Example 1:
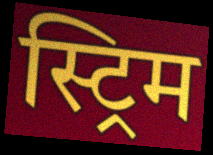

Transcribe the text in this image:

स्ट्रिम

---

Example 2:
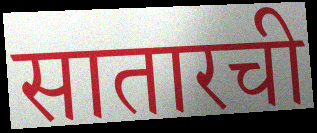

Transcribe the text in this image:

सातारची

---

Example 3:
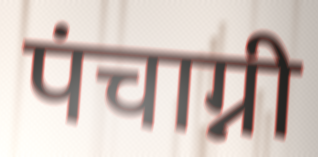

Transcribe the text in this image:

पंचाग्नी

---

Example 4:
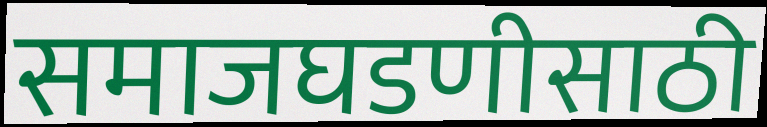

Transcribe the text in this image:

समाजघडणीसाठी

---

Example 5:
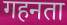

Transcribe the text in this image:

गहनता